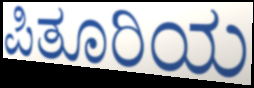
ಪಿತೂರಿಯ